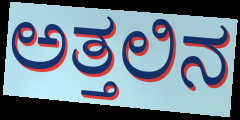
ಅತ್ತಲಿನ